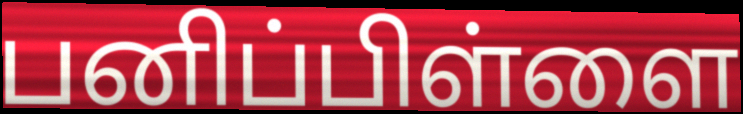
பனிப்பிள்ளை